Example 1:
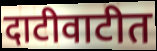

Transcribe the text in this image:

दाटीवाटीत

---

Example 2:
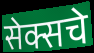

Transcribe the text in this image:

सेक्सचे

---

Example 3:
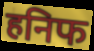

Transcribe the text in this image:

हनिफ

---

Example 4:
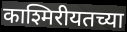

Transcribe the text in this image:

काश्मिरीयतच्या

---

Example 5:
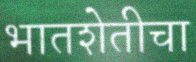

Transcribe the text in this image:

भातशेतीचा